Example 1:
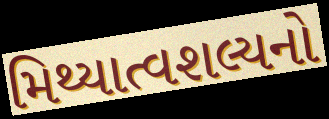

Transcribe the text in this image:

મિથ્યાત્વશલ્યનો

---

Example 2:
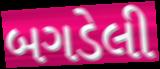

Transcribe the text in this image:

બગડેલી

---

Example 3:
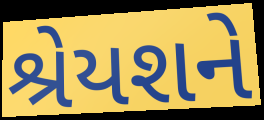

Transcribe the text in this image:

શ્રેયશને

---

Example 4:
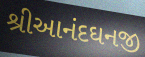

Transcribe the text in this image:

શ્રીઆનંદઘનજી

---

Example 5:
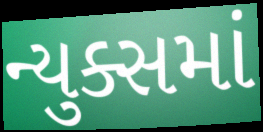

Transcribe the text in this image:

ન્યુક્સમાં